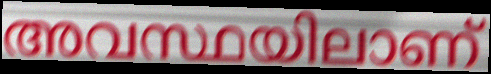
അവസ്ഥയിലാണ്